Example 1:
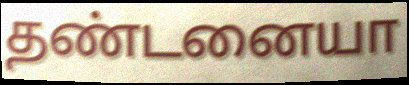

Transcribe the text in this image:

தண்டனையா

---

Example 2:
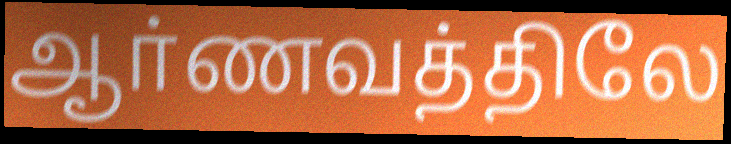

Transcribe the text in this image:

ஆர்ணவத்திலே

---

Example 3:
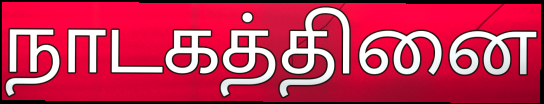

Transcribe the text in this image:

நாடகத்தினை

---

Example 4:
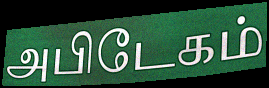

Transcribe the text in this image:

அபிடேகம்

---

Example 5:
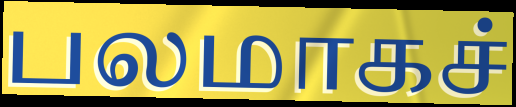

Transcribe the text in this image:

பலமாகச்